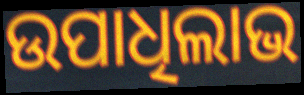
ଉପାଧିଲାଭ